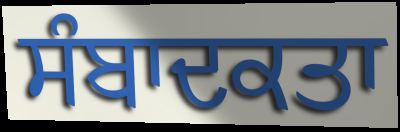
ਸੰਬਾਦਕਤਾ